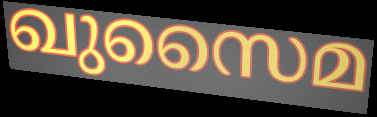
ഖുസൈമ